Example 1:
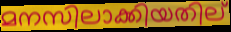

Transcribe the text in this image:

മനസിലാക്കിയതില്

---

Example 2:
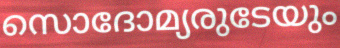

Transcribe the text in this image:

സൊദോമ്യരുടേയും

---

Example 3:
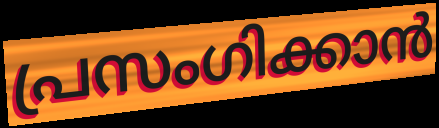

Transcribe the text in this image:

പ്രസംഗിക്കാൻ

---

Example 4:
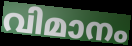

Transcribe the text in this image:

വിമാനം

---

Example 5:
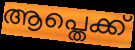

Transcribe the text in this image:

ആപ്തെക്ക്